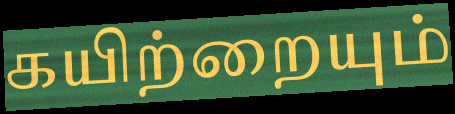
கயிற்றையும்